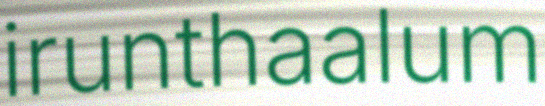
irunthaalum